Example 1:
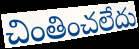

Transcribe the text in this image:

చింతించలేదు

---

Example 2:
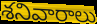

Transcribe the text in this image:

శనివారాలు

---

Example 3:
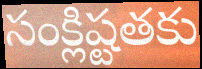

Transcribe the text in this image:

సంక్లిష్టతకు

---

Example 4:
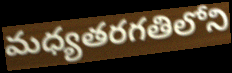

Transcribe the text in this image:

మధ్యతరగతిలోని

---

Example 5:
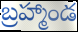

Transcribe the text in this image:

బ్రహ్మాండ